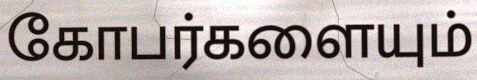
கோபர்களையும்